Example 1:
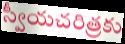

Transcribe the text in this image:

స్వీయచరిత్రకు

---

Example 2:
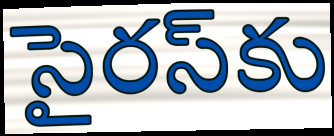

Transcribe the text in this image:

సైరస్‌కు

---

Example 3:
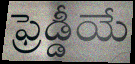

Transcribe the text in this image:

ఫ్రెడ్డీయే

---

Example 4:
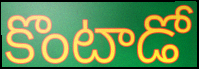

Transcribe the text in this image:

కొంటాడో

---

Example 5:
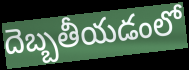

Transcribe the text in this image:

దెబ్బతీయడంలో